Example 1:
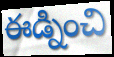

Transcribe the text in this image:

ఈడ్నించి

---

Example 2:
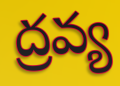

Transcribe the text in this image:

ద్రవ్య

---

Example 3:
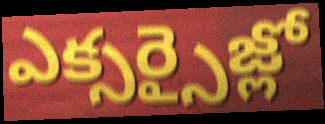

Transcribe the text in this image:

ఎక్సర్సైజ్లో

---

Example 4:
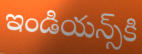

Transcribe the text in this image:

ఇండియన్స్‌కి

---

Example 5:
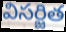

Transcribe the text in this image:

విసర్జిత